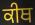
ਕੀਥ